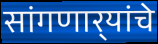
सांगणार्‍यांचे